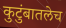
कुटुंबातलेच